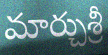
మార్చుశ్రీ